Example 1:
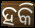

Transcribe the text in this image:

ହକି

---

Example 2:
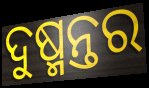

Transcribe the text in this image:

ଦୁଷ୍ମନ୍ତର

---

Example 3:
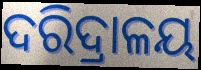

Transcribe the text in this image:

ଦରିଦ୍ରାଳୟ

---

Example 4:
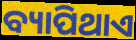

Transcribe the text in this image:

ବ୍ୟାପିଥାଏ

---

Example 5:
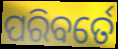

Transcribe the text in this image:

ପରିବର୍ତେ